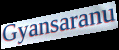
Gyansaranu